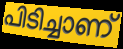
പിടിച്ചാണ്